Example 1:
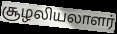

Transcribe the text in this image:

சூழலியலாளர்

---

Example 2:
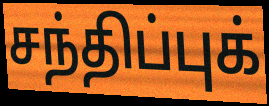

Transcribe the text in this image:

சந்திப்புக்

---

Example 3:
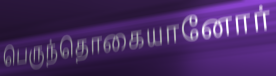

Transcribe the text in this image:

பெருந்தொகையானோர்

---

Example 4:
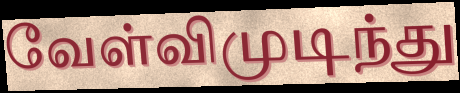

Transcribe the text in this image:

வேள்விமுடிந்து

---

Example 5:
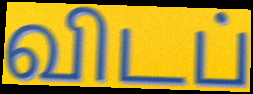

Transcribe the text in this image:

விடப்